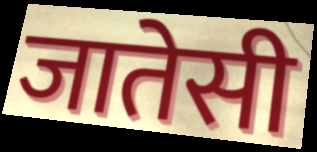
जातेसी